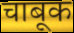
चाबूक